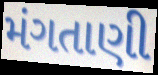
મંગતાણી